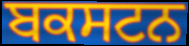
ਬਕਸਟਨ